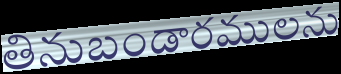
తినుబండారములను